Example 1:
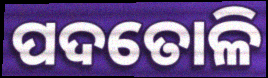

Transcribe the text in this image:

ପଦତୋଳି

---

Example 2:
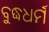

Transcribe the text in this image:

ବୁଦ୍ଧଧର୍ମ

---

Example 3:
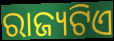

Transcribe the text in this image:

ରାଜ୍ୟଟିଏ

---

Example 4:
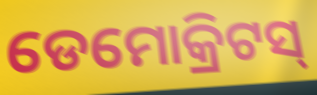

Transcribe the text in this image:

ଡେମୋକ୍ରିଟସ୍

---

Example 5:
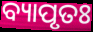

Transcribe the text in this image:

ବ୍ୟାପୃତଃ